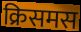
क्रिसमस